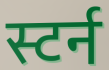
स्टर्न